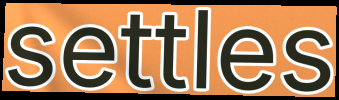
settles